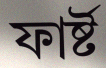
ফাৰ্ষ্ট